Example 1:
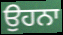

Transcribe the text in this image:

ਉਹਨਾ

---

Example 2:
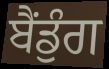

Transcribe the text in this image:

ਬੈਂਡੁੰਗ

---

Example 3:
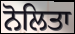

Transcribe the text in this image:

ਨੋਲਿਤਾ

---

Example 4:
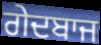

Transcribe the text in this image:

ਗੇਦਬਾਜ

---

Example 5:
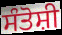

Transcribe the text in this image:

ਸੰਤੋਸ਼ੀ